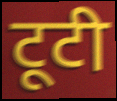
टूटी